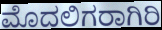
ಮೊದಲಿಗರಾಗಿರಿ